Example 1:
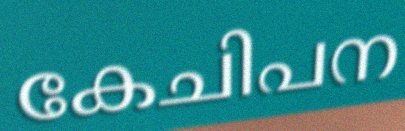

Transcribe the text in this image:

കേചിപന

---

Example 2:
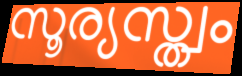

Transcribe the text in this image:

സൂര്യസ്ത്വം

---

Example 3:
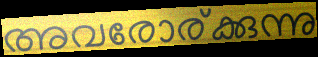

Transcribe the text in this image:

അവരോര്ക്കുന്നു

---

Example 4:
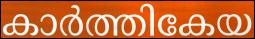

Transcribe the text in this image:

കാർത്തികേയ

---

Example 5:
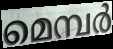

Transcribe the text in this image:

മെമ്പർ